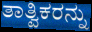
ತಾತ್ವಿಕರನ್ನು